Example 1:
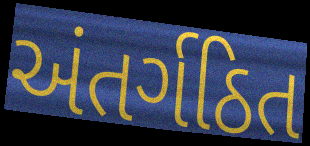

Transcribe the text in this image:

અંતર્ગઠિત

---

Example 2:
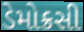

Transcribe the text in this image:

ડેમોક્રસી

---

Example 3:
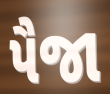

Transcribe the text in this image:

પૈજા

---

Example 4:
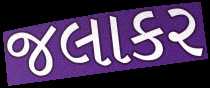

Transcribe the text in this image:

જલાકર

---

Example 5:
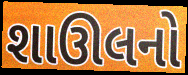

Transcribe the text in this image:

શાઊલનો